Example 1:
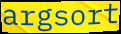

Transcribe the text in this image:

argsort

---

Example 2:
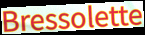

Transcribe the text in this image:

Bressolette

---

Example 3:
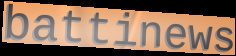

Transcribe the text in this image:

battinews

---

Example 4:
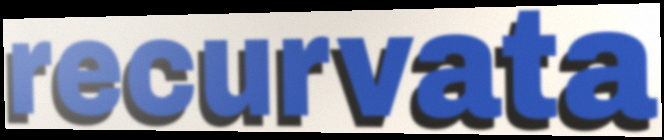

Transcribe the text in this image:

recurvata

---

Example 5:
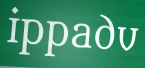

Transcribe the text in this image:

ippadu